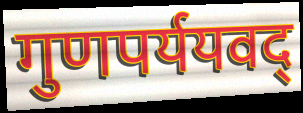
गुणपर्ययवद्